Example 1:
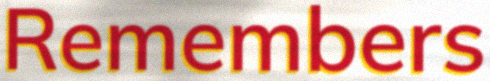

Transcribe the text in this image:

Remembers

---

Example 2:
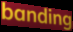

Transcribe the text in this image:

banding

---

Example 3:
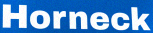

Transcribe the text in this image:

Horneck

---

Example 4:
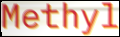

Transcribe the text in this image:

Methyl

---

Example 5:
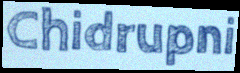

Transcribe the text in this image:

Chidrupni